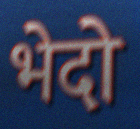
भेदो